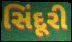
સિંદૂરી